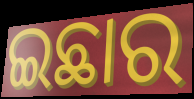
ଇଛାର